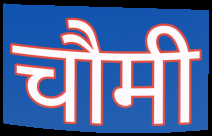
चौमी